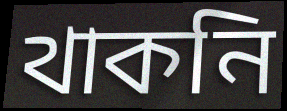
থাকনি